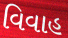
વિવાહ